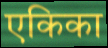
एकिका